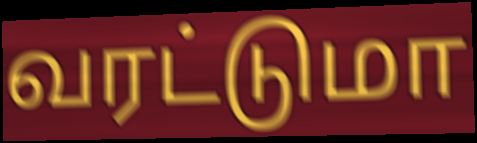
வரட்டுமா